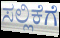
ಸಲ್ಲಿಕೆಗೆ